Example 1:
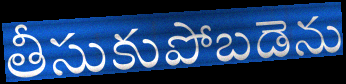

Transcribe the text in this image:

తీసుకుపోబడెను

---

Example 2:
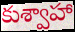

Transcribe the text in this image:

కుశ్వాహా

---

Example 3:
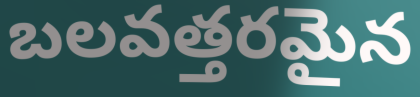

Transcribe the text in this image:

బలవత్తరమైన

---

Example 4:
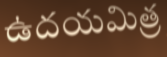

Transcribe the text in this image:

ఉదయమిత్ర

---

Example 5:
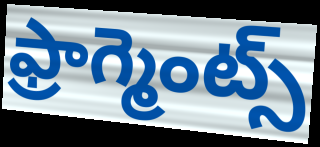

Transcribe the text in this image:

ఫ్రాగ్మెంట్స్